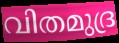
വിതമുദ്ര